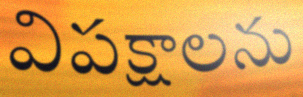
విపక్షాలను